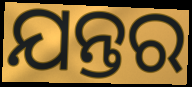
ଯନ୍ତର